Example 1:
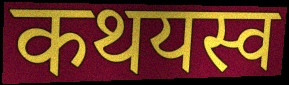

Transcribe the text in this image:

कथयस्व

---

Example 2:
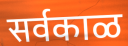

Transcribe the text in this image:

सर्वकाळ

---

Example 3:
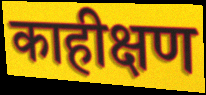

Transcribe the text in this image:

काहीक्षण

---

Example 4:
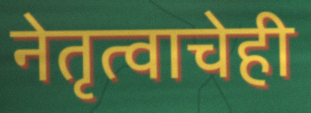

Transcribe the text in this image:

नेतृत्वाचेही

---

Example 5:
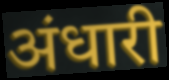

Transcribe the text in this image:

अंधारी